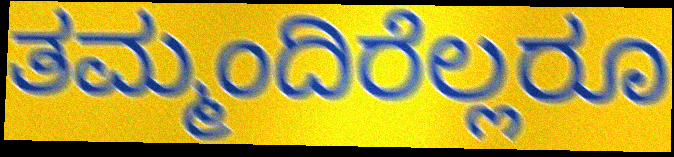
ತಮ್ಮಂದಿರೆಲ್ಲರೂ